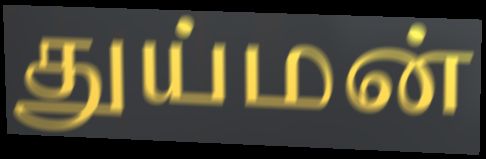
துய்மன்